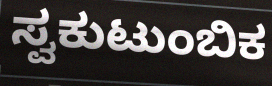
ಸ್ವಕುಟುಂಬಿಕ